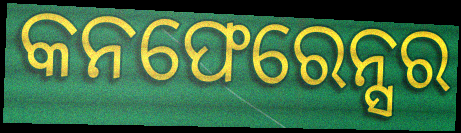
କନଫେରେନ୍ସର